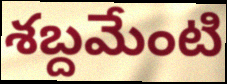
శబ్దమేంటి